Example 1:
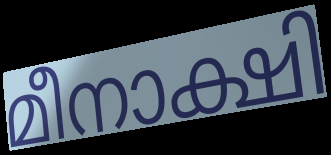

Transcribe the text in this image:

മീനാക്ഷി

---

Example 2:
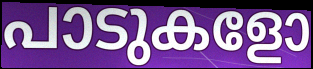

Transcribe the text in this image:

പാടുകളോ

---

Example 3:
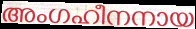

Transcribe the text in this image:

അംഗഹീനനായ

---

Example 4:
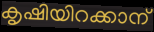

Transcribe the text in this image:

കൃഷിയിറക്കാന്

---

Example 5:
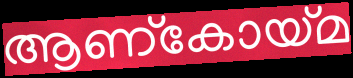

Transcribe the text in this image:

ആണ്കോയ്മ